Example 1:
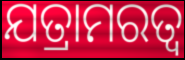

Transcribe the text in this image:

ଯତ୍ରାମରତ୍ଵ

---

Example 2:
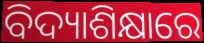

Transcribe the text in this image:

ବିଦ୍ୟାଶିକ୍ଷାରେ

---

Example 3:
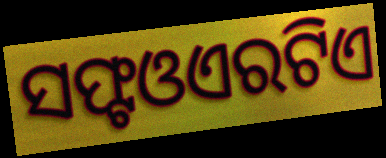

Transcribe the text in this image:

ସଫ୍ଟଓଏରଟିଏ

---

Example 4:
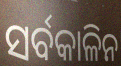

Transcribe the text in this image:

ସର୍ବକାଳିନ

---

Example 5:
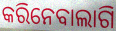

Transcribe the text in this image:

କରିନେବାଲାଗି